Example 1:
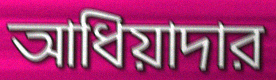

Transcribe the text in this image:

আধিয়াদার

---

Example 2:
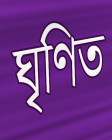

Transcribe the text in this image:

ঘৃণিত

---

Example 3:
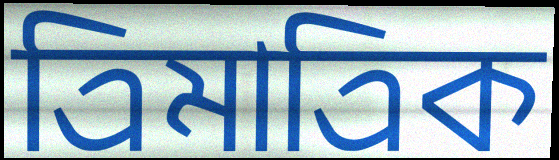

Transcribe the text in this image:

ত্রিমাত্রিক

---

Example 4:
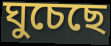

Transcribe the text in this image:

ঘুচেছে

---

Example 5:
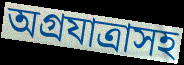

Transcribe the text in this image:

অগ্রযাত্রাসহ